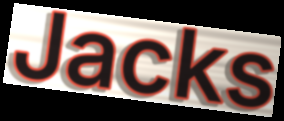
Jacks